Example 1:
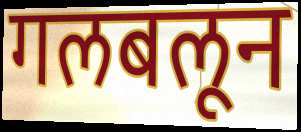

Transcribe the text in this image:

गलबलून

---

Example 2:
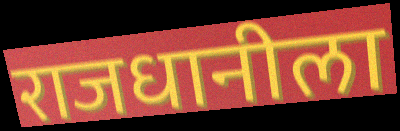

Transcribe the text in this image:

राजधानीला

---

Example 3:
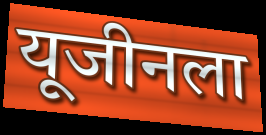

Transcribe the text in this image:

यूजीनला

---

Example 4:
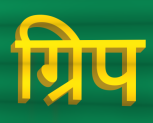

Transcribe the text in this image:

ग्रिप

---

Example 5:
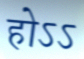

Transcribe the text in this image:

होऽऽ